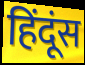
हिंदूंस